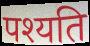
पश्यति